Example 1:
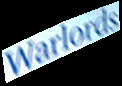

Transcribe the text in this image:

Warlords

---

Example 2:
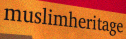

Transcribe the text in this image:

muslimheritage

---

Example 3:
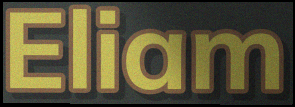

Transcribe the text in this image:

Eliam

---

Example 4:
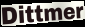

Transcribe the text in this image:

Dittmer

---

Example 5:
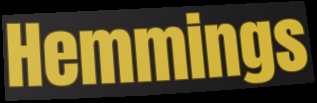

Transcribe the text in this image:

Hemmings